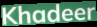
Khadeer